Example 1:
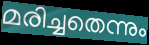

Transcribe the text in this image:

മരിച്ചതെന്നും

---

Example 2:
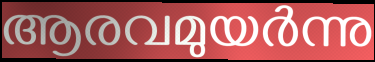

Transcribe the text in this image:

ആരവമുയർന്നു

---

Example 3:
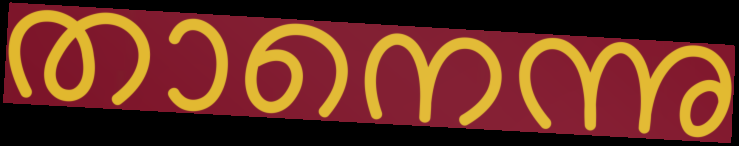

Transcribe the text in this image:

താനെന്നു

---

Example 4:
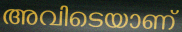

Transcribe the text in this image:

അവിടെയാണ്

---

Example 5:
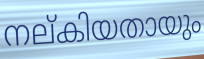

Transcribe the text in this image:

നല്കിയതായും